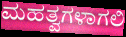
ಮಹತ್ವಗಳಾಗಲಿ